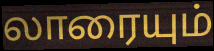
லாரையும்